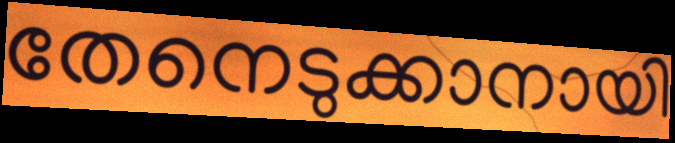
തേനെടുക്കാനായി